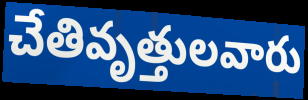
చేతివృత్తులవారు